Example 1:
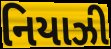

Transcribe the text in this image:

નિયાઝી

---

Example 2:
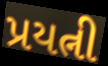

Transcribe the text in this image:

પ્રયત્ની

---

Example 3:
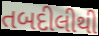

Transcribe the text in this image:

તબદીલીથી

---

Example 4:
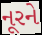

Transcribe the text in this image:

નૂરને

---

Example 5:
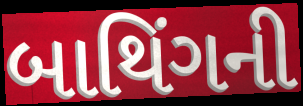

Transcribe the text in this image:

બાથિંગની